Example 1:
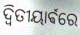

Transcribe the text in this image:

ଦ୍ଵିତୀୟାର୍ଵରେ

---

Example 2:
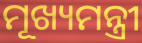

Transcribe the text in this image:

ମୂଖ୍ୟମନ୍ତ୍ରୀ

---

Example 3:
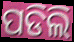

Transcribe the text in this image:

ପଡିଲି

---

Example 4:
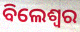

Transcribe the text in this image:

ବିଲେଶ୍ଵର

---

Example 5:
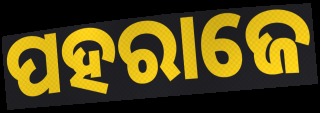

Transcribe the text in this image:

ପହରାଜେ